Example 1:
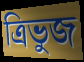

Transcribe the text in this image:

ত্রিভুজ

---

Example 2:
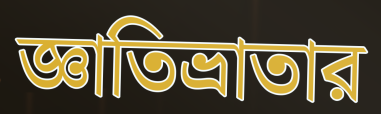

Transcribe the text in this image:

জ্ঞাতিভ্রাতার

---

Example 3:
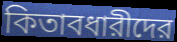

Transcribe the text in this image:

কিতাবধারীদের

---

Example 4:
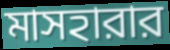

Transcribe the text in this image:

মাসহারার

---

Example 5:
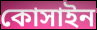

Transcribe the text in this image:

কোসাইন